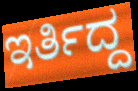
ಇರ್ತಿದ್ದ